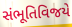
સંભૂતિવિજયે